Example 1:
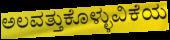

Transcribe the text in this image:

ಅಲವತ್ತುಕೊಳ್ಳುವಿಕೆಯ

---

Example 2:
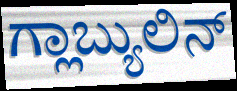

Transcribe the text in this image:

ಗ್ಲಾಬ್ಯುಲಿನ್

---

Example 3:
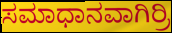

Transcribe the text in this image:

ಸಮಾಧಾನವಾಗಿರ್ರಿ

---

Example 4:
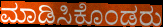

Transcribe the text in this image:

ಮಾಡಿಸಿಕೊಂಡರು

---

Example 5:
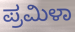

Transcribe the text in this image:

ಪ್ರಮಿಳಾ